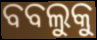
ବବଲୁକୁ